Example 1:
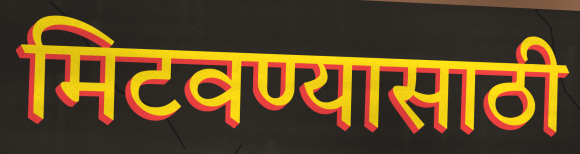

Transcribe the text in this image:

मिटवण्यासाठी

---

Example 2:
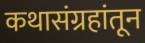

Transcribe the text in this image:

कथासंग्रहांतून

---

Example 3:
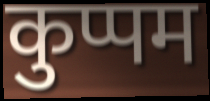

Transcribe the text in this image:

कुप्पम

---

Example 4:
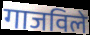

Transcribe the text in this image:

गाजविले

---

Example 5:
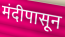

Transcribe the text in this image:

मंदीपासून